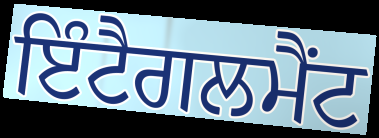
ਇੰਟੈਗਲਮੈਂਟ